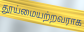
தூய்மையற்றவராக